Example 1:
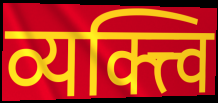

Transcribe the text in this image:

व्यक्त्त्वि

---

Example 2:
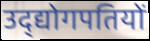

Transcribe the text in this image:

उद्द्योगपतियों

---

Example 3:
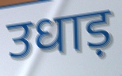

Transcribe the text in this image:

उधाड़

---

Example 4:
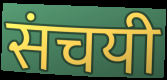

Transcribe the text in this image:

संचयी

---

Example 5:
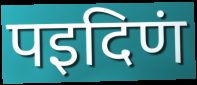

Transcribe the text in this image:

पइदिणं